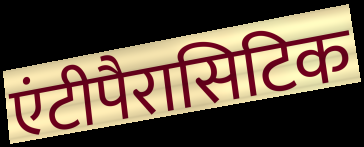
एंटीपैरासिटिक